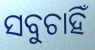
ସବୁଚାହିଁ